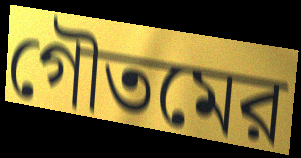
গৌতমের